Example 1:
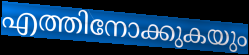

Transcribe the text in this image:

എത്തിനോക്കുകയും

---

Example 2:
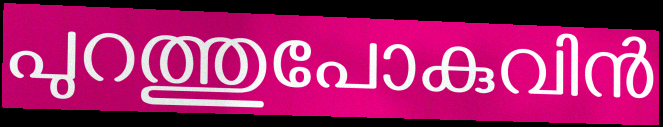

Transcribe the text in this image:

പുറത്തുപോകുവിൻ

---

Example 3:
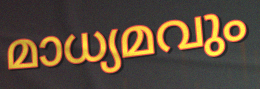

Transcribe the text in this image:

മാധ്യമവും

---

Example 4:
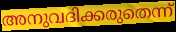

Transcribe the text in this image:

അനുവദിക്കരുതെന്ന്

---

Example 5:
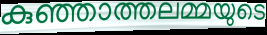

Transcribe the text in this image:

കുഞ്ഞാത്തലമ്മയുടെ